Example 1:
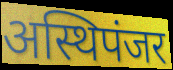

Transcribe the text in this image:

अस्थिपंजर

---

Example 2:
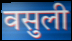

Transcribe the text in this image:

वसुली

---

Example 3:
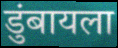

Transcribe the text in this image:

डुंबायला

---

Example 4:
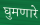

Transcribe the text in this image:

घुमणारे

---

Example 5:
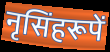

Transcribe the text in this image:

नृसिंहरूपें